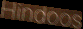
Hindoos